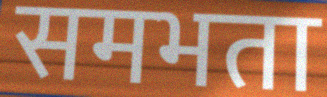
समभता